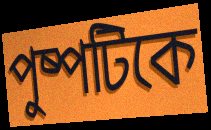
পুষ্পটিকে